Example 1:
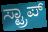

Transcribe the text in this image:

ಸ್ಟ್ರಾಪ್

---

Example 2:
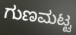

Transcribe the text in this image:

ಗುಣಮಟ್ಟ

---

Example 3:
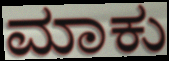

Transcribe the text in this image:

ಮಾಕು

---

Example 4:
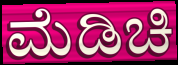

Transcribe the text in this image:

ಮೆಡಿಚಿ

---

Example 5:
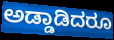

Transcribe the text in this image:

ಅಡ್ಡಾಡಿದರೂ